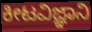
ಕೀಟವಿಜ್ಞಾನಿ